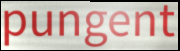
pungent